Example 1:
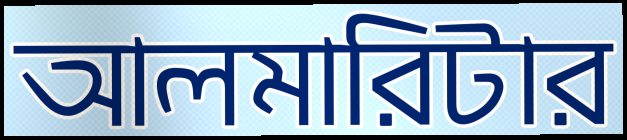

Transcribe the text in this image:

আলমারিটার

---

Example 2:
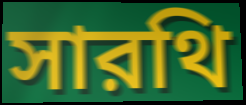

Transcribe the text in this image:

সারথি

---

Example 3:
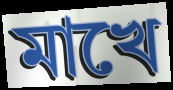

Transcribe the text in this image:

মাখে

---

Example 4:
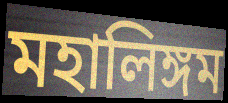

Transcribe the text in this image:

মহালিঙ্গম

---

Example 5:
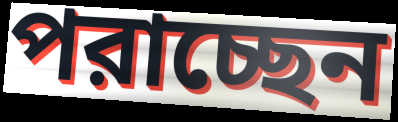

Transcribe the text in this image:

পরাচ্ছেন